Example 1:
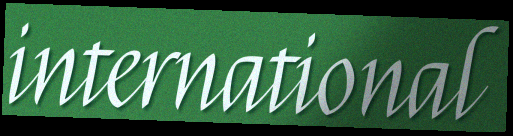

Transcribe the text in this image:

international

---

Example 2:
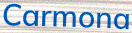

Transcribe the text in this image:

Carmona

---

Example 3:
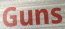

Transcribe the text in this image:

Guns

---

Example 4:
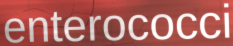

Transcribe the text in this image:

enterococci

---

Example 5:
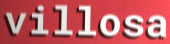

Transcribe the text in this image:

villosa